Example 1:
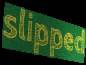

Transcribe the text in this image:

slipped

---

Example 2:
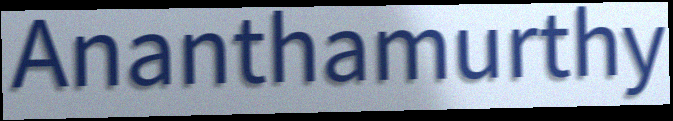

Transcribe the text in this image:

Ananthamurthy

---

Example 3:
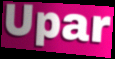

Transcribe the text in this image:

Upar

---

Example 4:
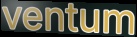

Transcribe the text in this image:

ventum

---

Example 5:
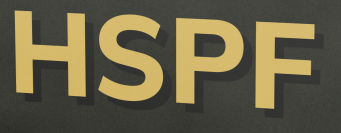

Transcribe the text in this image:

HSPF